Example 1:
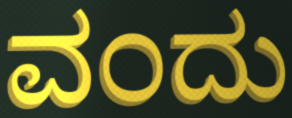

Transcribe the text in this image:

ವಂದು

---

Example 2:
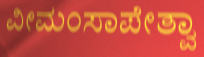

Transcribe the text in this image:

ವೀಮಂಸಾಪೇತ್ವಾ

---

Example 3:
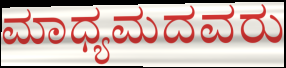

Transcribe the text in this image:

ಮಾಧ್ಯಮದವರು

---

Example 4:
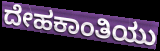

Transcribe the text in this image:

ದೇಹಕಾಂತಿಯು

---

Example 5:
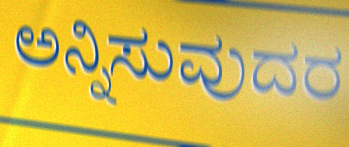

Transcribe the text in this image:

ಅನ್ನಿಸುವುದರ